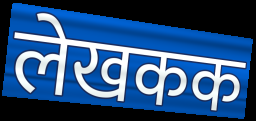
लेखकक